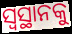
ସ୍ୱସ୍ଥାନକୁ